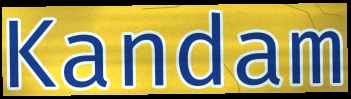
Kandam